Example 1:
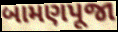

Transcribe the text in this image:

બામણપૂજા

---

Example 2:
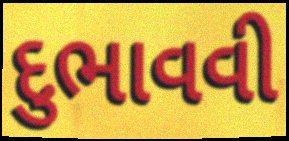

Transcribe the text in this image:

દુભાવવી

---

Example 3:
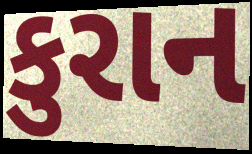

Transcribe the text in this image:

કુરાન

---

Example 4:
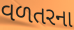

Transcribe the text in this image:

વળતરના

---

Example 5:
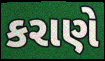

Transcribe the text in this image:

કરાણે